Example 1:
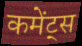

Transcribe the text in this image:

कमेंट्‌स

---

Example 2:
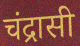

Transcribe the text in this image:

चंद्रासी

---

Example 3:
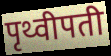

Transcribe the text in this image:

पृथ्वीपती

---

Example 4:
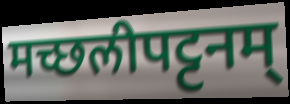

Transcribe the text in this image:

मच्छलीपट्टनम्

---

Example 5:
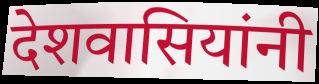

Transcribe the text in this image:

देशवासियांनी